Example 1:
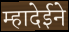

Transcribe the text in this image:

म्हादेईने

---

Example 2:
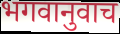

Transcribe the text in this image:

भगवानुवाच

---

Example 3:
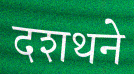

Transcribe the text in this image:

दशथने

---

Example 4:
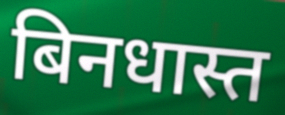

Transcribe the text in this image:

बिनधास्त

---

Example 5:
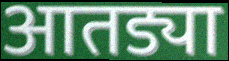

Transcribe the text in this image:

आतड्या